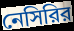
নেসিরির